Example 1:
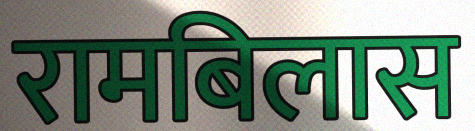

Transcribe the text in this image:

रामबिलास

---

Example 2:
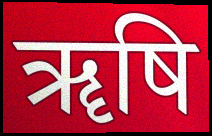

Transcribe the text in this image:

ॠषि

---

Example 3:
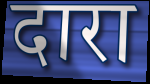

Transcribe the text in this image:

दारा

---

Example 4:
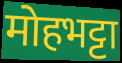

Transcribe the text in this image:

मोहभट्टा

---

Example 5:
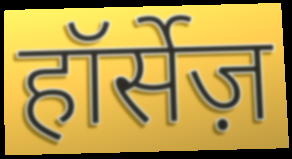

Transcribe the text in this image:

हॉर्सेज़